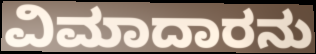
ವಿಮಾದಾರನು